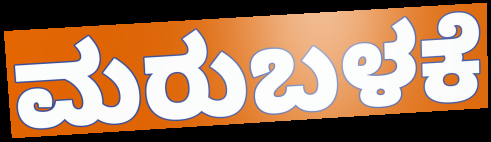
ಮರುಬಳಕೆ